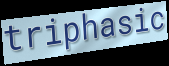
triphasic